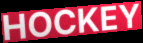
HOCKEY